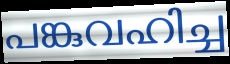
പങ്കുവഹിച്ച